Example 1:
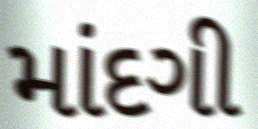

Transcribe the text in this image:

માંદગી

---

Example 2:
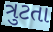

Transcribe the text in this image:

ત્રુટતા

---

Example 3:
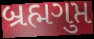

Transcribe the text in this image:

બ્રહ્મગુપ્ત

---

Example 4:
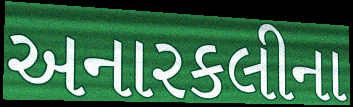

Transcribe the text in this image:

અનારકલીના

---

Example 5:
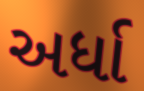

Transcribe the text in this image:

અર્ધા